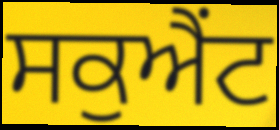
ਸਕੁਐਂਟ